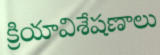
క్రియావిశేషణాలు